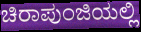
ಚಿರಾಪುಂಜಿಯಲ್ಲಿ